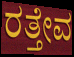
ರತ್ತೇವ